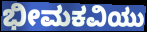
ಭೀಮಕವಿಯು